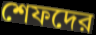
শেফদের